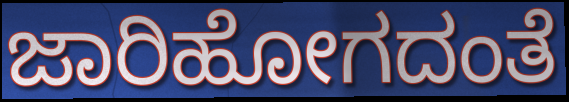
ಜಾರಿಹೋಗದಂತೆ